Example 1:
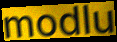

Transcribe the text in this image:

modlu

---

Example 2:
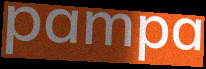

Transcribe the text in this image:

pampa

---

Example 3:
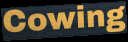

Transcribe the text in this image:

Cowing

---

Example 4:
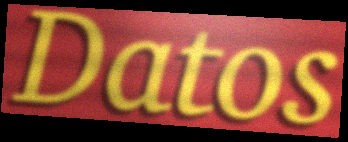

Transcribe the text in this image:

Datos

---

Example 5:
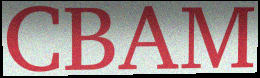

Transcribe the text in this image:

CBAM